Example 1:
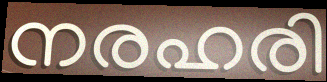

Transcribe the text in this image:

നരഹരി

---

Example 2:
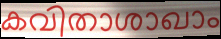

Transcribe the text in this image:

കവിതാശാഖാം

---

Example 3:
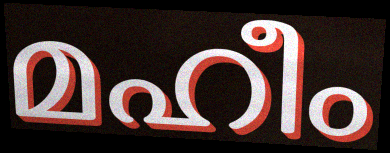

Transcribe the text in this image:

മഹീം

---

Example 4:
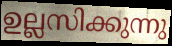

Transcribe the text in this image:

ഉല്ലസിക്കുന്നു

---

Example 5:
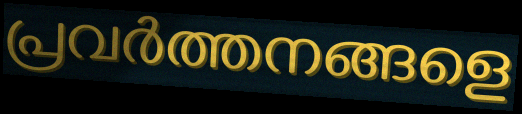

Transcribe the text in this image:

പ്രവർത്തനങ്ങളെ